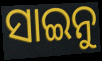
ସାଇନୁ